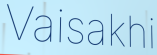
Vaisakhi